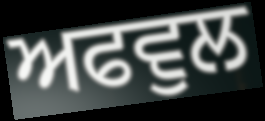
ਅਫਵੁਲ